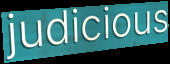
judicious